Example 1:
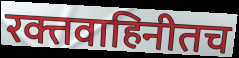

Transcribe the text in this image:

रक्तवाहिनीतच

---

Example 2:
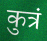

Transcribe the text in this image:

कुत्रं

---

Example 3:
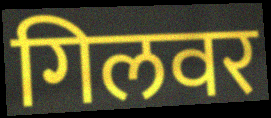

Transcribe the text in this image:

गिलवर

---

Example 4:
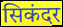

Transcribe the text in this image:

सिकंदर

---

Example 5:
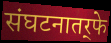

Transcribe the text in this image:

संघटनातर्फे